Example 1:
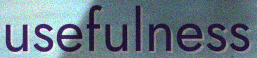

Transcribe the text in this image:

usefulness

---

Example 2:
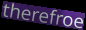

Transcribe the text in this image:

therefroe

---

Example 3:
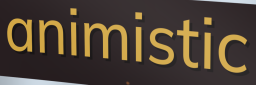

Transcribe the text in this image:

animistic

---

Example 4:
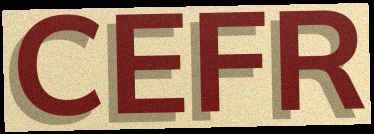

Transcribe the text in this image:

CEFR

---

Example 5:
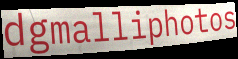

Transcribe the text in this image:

dgmalliphotos